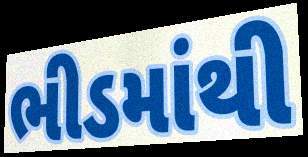
ભીડમાંથી